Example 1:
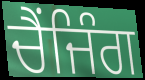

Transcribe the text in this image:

ਚੈਂਜਿੰਗ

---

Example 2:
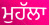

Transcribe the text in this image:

ਮੁਹੱਲਾ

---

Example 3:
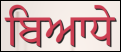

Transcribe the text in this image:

ਬਿਆਧੇ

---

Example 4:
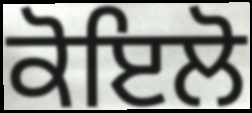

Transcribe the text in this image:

ਕੋਇਲੋ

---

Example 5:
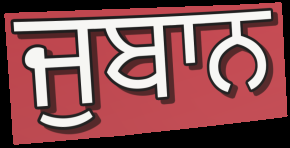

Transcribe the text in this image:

ਜੁਬਾਨ